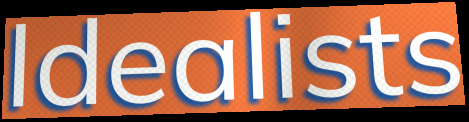
Idealists